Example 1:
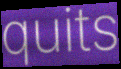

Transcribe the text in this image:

quits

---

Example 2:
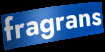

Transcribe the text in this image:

fragrans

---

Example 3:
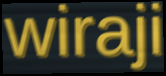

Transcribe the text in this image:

wiraji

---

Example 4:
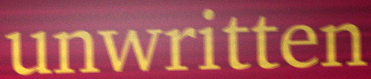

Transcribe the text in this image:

unwritten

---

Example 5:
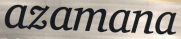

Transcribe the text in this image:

azamana